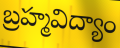
బ్రహ్మవిద్యాం